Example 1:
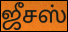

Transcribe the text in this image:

ஜீசஸ்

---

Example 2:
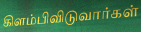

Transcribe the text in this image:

கிளம்பிவிடுவார்கள்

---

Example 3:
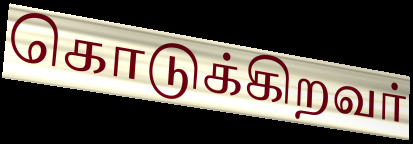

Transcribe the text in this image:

கொடுக்கிறவர்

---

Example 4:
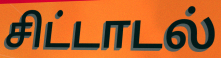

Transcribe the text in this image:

சிட்டாடல்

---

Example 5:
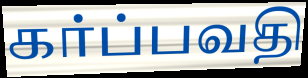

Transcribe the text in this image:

கர்ப்பவதி